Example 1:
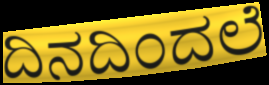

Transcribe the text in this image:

ದಿನದಿಂದಲೆ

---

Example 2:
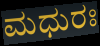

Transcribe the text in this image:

ಮಧುರಃ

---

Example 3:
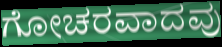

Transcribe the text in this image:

ಗೋಚರವಾದವು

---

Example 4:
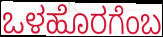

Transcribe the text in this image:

ಒಳಹೊರಗೆಂಬ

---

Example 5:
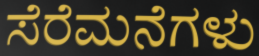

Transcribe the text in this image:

ಸೆರೆಮನೆಗಳು